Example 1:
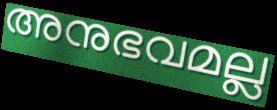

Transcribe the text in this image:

അനുഭവമല്ല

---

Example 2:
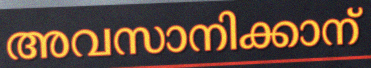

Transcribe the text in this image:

അവസാനിക്കാന്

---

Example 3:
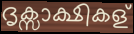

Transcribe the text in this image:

ദൃക്സാക്ഷികള്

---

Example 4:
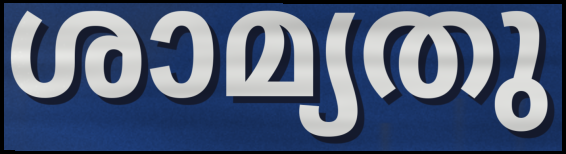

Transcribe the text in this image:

ശാമ്യതു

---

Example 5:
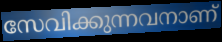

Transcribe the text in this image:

സേവിക്കുന്നവനാണ്